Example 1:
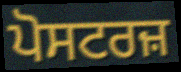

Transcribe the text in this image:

ਪੋਸਟਰਜ਼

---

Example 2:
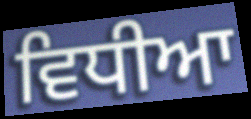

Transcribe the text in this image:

ਵਿਧੀਆ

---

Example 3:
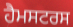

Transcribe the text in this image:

ਹੈਮਸਟਰਸ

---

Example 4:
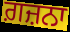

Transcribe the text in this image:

ਗ਼ਜ਼ਨਾ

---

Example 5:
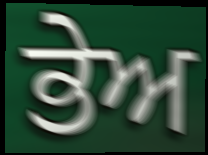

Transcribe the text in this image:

ਭੇਅ